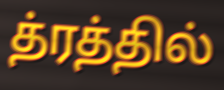
த்ரத்தில்